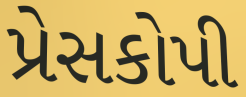
પ્રેસકોપી